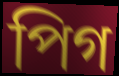
পিগ